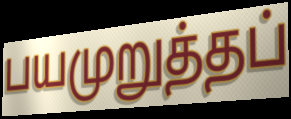
பயமுறுத்தப்